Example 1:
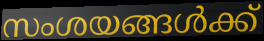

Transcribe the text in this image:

സംശയങ്ങൾക്ക്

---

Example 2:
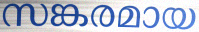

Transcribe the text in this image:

സങ്കരമായ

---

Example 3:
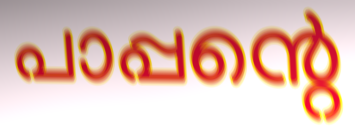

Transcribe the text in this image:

പാപ്പന്റെ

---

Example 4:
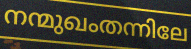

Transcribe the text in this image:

നന്മുഖംതന്നിലേ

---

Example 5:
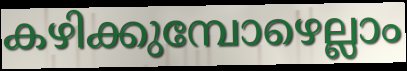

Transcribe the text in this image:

കഴിക്കുമ്പോഴെല്ലാം